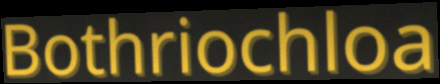
Bothriochloa